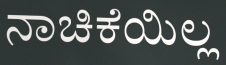
ನಾಚಿಕೆಯಿಲ್ಲ